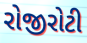
રોજીરોટી